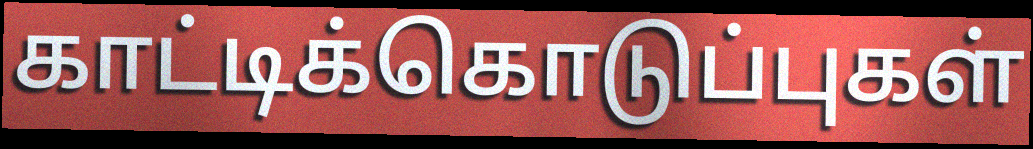
காட்டிக்கொடுப்புகள்